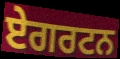
ਏਗਰਟਨ